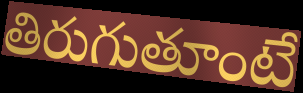
తిరుగుతూంటే